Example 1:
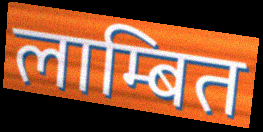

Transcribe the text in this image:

लाम्बित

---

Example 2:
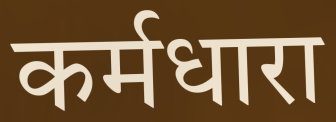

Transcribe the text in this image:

कर्मधारा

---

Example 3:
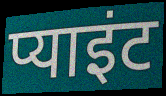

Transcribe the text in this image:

प्याइंट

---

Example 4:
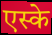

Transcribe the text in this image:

एस्के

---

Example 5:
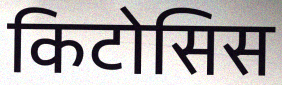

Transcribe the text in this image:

किटोसिस